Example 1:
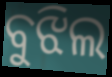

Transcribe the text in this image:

ବୁଝିଲ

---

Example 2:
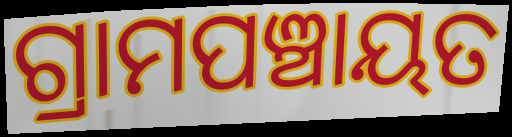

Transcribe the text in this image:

ଗ୍ରାମପଞ୍ଚାୟତ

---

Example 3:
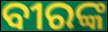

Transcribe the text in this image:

ବୀରଙ୍କ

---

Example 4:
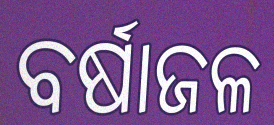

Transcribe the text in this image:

ବର୍ଷାଜଳ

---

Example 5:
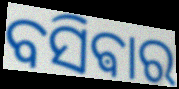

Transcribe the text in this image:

ବସିଵାର